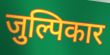
जुल्पिकार